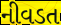
નીવડત